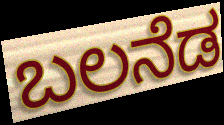
ಬಲನೆಡ